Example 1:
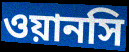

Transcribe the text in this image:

ওয়ানসি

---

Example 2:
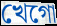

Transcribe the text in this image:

খেগো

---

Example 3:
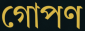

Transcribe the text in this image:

গোপণ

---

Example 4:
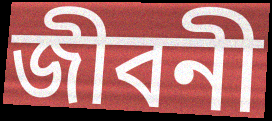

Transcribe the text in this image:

জীবনী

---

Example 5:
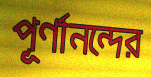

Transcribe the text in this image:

পূর্ণানন্দের